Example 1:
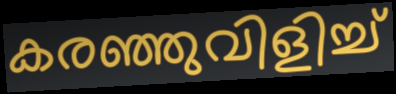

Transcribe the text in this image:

കരഞ്ഞുവിളിച്ച്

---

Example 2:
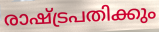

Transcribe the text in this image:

രാഷ്ട്രപതിക്കും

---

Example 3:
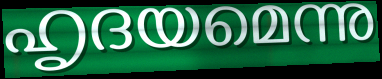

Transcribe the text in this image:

ഹൃദയമെന്നു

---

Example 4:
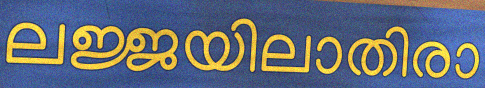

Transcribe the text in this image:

ലജ്ജയിലാതിരാ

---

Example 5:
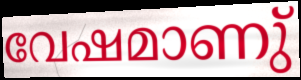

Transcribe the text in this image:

വേഷമാണു്